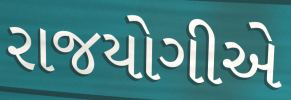
રાજયોગીએ